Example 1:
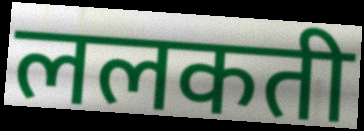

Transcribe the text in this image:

ललकती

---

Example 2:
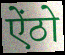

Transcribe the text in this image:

ऐंठो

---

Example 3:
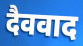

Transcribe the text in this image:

दैववाद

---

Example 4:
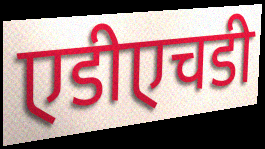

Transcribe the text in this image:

एडीएचडी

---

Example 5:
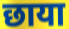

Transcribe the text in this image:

छाया